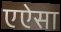
एऐसा